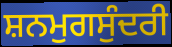
ਸ਼ਨਮੁਗਸੁੰਦਰੀ